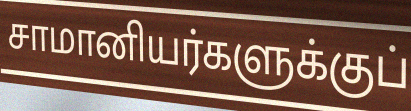
சாமானியர்களுக்குப்